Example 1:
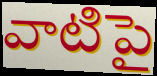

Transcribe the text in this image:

వాటిపై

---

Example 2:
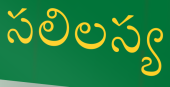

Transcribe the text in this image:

సలిలస్య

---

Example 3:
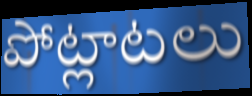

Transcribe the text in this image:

పోట్లాటలు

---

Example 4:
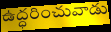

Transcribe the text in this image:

ఉద్ధరించువాడు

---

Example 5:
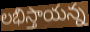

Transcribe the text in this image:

లభిస్తాయన్న